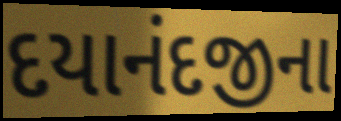
દયાનંદજીના